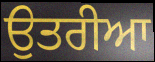
ਉਤਰੀਆ